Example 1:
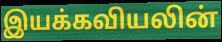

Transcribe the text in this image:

இயக்கவியலின்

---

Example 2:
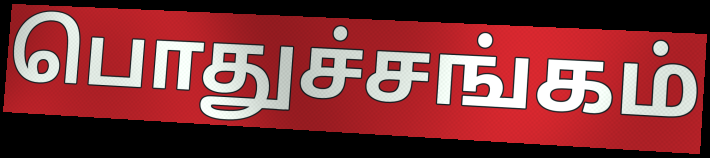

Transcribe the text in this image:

பொதுச்சங்கம்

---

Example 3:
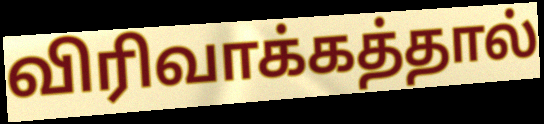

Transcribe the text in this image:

விரிவாக்கத்தால்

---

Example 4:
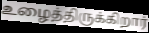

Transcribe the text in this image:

உழைத்திருக்கிறார்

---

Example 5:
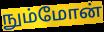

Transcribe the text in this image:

நும்மோன்